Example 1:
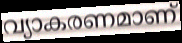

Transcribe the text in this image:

വ്യാകരണമാണ്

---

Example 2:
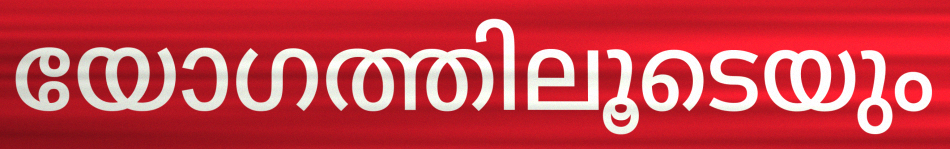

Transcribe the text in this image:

യോഗത്തിലൂടെയും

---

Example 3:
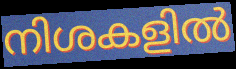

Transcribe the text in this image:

നിശകളിൽ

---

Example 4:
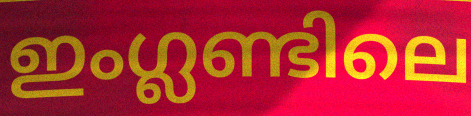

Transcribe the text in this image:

ഇംഗ്ലണ്ടിലെ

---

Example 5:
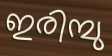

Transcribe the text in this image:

ഇരിമ്പു